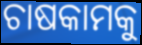
ଚାଷକାମକୁ